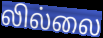
லில்லை